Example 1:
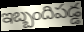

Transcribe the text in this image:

ఇబ్బందిపడ్డ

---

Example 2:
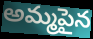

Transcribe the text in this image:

అమ్మపైన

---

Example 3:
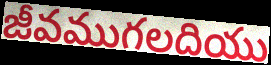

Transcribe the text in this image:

జీవముగలదియు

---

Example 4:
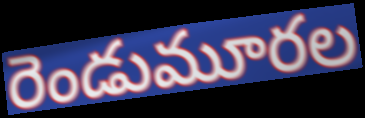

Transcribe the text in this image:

రెండుమూరల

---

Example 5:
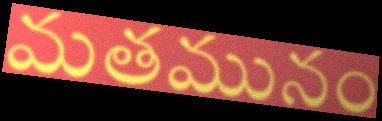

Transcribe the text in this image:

మతమునం